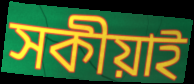
সকীয়াই